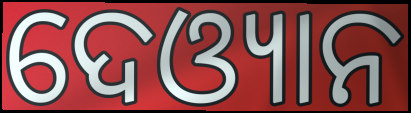
ଦେଓ୍ୟାନ